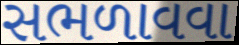
સભળાવવા